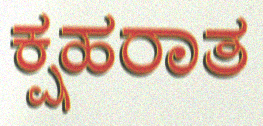
ಕ್ಷಹರಾತ